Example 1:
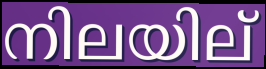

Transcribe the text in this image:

നിലയില്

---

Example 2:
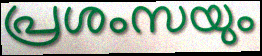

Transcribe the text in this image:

പ്രശംസയും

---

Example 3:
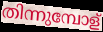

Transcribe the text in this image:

തിന്നുമ്പോള്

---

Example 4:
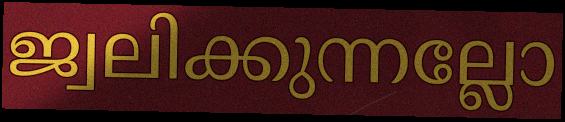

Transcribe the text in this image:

ജ്വലിക്കുന്നല്ലോ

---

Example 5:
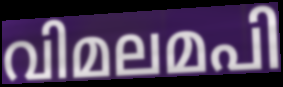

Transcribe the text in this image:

വിമലമപി